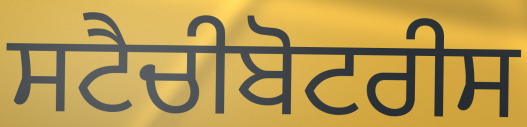
ਸਟੈਚੀਬੋਟਰੀਸ